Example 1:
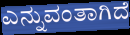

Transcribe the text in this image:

ಎನ್ನುವಂತಾಗಿದೆ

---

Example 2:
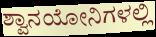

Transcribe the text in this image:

ಶ್ವಾನಯೋನಿಗಳಲ್ಲಿ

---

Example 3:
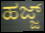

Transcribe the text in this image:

ಹಜ್ಜ್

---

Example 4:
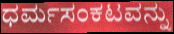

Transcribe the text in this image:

ಧರ್ಮಸಂಕಟವನ್ನು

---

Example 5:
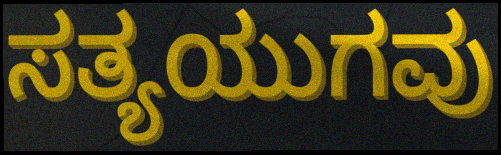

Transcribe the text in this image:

ಸತ್ಯಯುಗವು